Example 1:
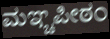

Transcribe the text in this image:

ಮಞ್ಚಪೀಠಂ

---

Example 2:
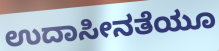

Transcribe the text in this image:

ಉದಾಸೀನತೆಯೂ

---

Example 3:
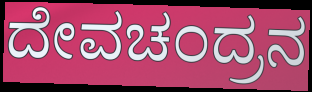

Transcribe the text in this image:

ದೇವಚಂದ್ರನ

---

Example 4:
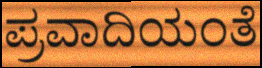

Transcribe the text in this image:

ಪ್ರವಾದಿಯಂತೆ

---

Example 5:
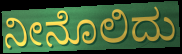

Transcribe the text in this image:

ನೀನೊಲಿದು